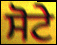
ਸੋਟੇ